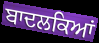
ਬਾਦਲਕਿਆਂ